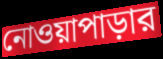
নোওয়াপাড়ার